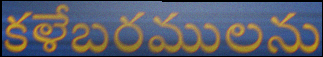
కళేబరములను